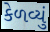
કેળવ્યું